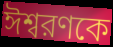
ঈশ্বরণকে